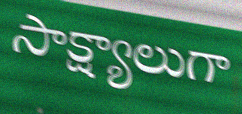
సాక్ష్యాలుగా